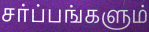
சர்ப்பங்களும்